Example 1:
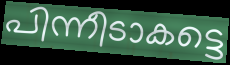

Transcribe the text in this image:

പിന്നീടാകട്ടെ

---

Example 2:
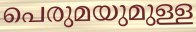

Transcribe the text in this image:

പെരുമയുമുള്ള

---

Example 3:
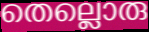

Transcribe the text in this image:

തെല്ലൊരു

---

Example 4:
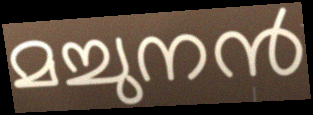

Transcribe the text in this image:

മച്ചുനൻ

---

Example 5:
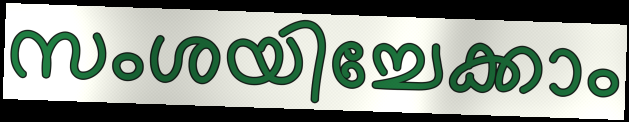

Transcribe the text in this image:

സംശയിച്ചേക്കാം